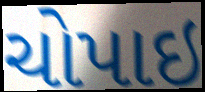
ચોપાઇ